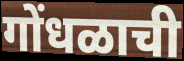
गोंधळाची